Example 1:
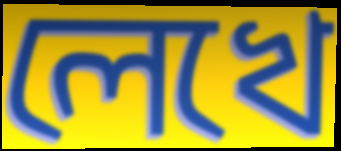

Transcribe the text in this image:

লেখে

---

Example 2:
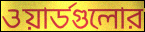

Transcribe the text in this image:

ওয়ার্ডগুলোর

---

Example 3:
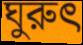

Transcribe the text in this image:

ঘুরুৎ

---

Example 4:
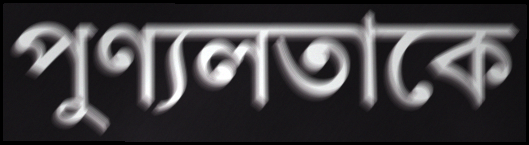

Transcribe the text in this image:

পুণ্যলতাকে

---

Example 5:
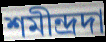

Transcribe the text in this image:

শমীন্দ্রদা